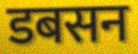
डबसन